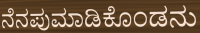
ನೆನಪುಮಾಡಿಕೊಂಡನು